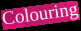
Colouring